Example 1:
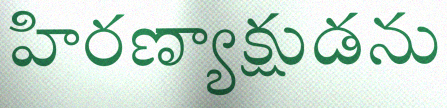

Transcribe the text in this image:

హిరణ్యాక్షుడను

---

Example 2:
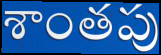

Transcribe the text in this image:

శాంతపు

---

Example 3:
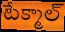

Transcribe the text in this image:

టేక్మాల్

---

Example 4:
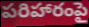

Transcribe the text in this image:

పరిహారంపై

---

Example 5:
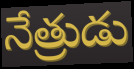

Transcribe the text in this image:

నేత్రుడు